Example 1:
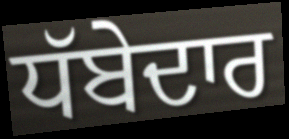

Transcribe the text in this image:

ਧੱਬੇਦਾਰ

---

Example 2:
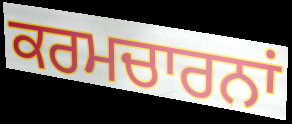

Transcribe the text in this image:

ਕਰਮਚਾਰਨਾਂ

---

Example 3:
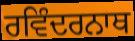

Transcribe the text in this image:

ਰਵਿੰਦਰਨਾਥ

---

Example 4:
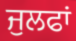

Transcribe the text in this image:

ਜੁਲਫਾਂ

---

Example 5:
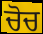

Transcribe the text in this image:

ਚੋਚ